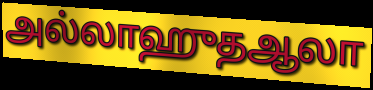
அல்லாஹுதஆலா